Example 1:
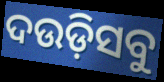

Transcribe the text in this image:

ଦଉଡ଼ିସବୁ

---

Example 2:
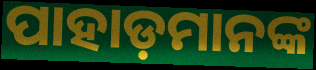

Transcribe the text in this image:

ପାହାଡ଼ମାନଙ୍କ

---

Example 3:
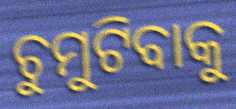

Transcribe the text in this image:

ଚୁମୁଟିବାକୁ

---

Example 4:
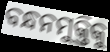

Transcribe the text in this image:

ବନ୍ଧନମୁକ୍ତିକୁ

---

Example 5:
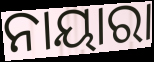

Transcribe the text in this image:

ନାୟାରା